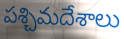
పశ్చిమదేశాలు